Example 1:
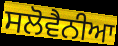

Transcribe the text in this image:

ਸਲੋਵੈਨੀਆ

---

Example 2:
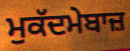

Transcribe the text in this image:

ਮੁਕੱਦਮੇਬਾਜ਼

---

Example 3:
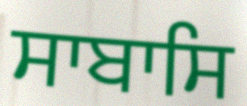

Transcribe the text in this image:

ਸਾਬਾਸਿ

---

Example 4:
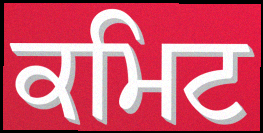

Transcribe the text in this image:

ਕਮਿਟ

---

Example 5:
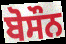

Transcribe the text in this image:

ਬੋਸੌਨ